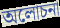
অলোচনা